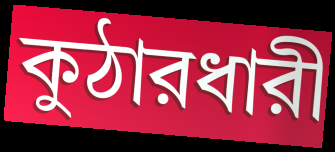
কুঠারধারী